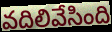
వదిలివేసింది